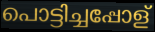
പൊട്ടിച്ചപ്പോള്